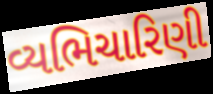
વ્યભિચારિણી